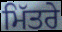
ਮਿੱਤਰੇ